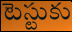
టెస్టుకు